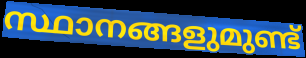
സ്ഥാനങ്ങളുമുണ്ട്